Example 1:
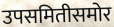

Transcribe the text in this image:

उपसमितीसमोर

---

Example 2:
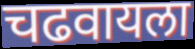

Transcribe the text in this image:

चढवायला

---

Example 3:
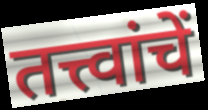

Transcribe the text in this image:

तत्त्वांचें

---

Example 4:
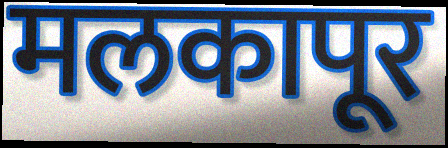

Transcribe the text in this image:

मलकापूर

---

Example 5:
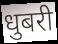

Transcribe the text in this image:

धुबरी